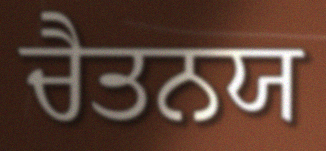
ਚੈਤਨਯ